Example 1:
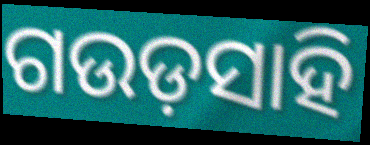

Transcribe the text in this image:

ଗଉଡ଼ସାହି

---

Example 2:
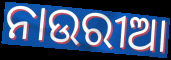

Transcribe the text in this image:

ନାଉରୀଆ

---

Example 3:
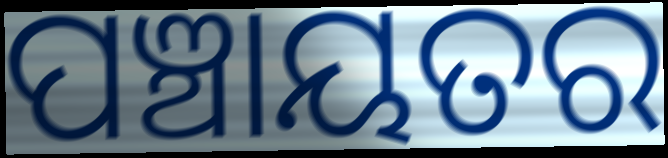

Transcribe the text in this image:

ପଞ୍ଚାୟତର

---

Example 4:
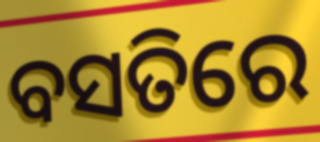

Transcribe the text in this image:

ବସତିରେ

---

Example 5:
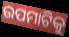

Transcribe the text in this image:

ଉପମାଟିକୁ